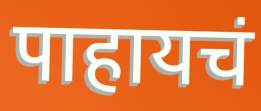
पाहायचं